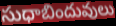
సుధాబిందువులు